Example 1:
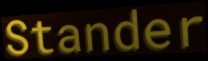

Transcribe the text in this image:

Stander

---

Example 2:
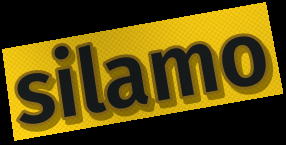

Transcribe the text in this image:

silamo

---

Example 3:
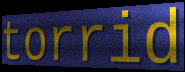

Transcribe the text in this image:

torrid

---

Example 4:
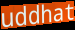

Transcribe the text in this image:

uddhat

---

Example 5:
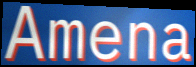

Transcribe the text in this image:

Amena